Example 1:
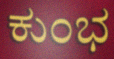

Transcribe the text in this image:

ಕುಂಭ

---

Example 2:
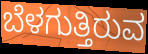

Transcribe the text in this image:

ಬೆಳಗುತ್ತಿರುವ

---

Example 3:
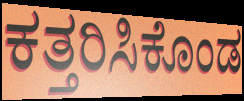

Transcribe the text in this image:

ಕತ್ತರಿಸಿಕೊಂಡ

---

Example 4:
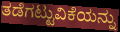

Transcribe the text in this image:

ತಡೆಗಟ್ಟುವಿಕೆಯನ್ನು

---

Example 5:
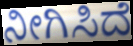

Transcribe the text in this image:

ನೀಗಿಸಿದೆ